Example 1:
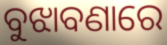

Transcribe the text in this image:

ବୁଝାବଣାରେ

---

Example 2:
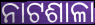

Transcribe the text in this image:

ନାଟଶାଳା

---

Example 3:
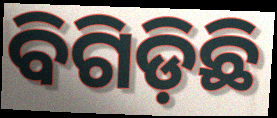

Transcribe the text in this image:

ବିଗିଡ଼ିଛି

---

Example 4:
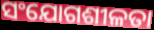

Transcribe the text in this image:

ସଂଯୋଗଶୀଳତା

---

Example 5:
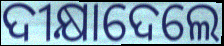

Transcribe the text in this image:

ଦୀକ୍ଷାଦେଲେ